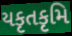
યકૃતકૃમિ